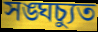
সঙ্ঘচ্যুত